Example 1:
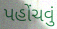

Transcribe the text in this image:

પહોંચવું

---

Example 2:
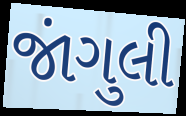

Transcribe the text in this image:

જાંગુલી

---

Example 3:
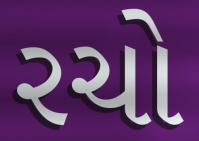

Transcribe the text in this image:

રચો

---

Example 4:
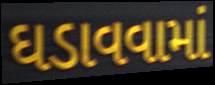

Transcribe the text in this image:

ઘડાવવામાં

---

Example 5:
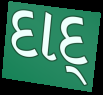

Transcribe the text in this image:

દાદ્